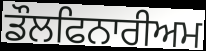
ਡੌਲਫਿਨਾਰੀਅਮ